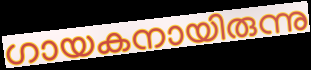
ഗായകനായിരുന്നു